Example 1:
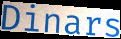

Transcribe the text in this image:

Dinars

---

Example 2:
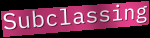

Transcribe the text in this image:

Subclassing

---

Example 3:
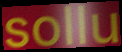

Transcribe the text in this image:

sollu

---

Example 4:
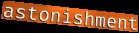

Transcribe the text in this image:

astonishment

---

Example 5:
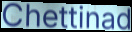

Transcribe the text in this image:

Chettinad